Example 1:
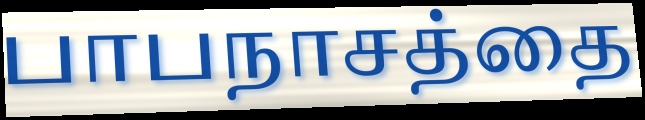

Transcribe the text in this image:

பாபநாசத்தை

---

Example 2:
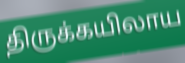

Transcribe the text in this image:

திருக்கயிலாய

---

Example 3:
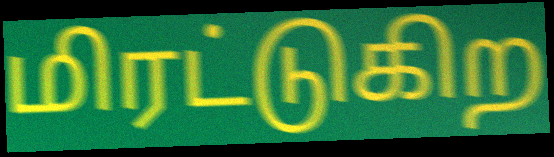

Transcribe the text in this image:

மிரட்டுகிற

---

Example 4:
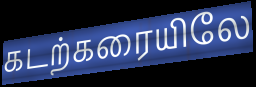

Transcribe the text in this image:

கடற்கரையிலே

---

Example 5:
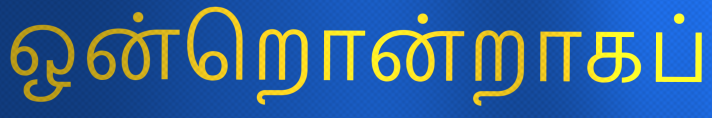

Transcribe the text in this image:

ஒன்றொன்றாகப்